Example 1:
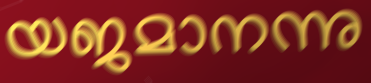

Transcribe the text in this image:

യജമാനന്നു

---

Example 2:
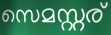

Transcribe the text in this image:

സെമസ്റ്റര്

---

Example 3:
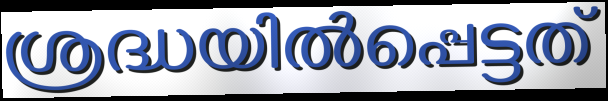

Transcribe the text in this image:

ശ്രദ്ധയിൽപ്പെട്ടത്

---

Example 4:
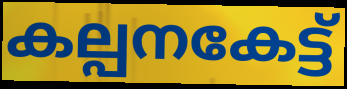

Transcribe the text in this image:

കല്പനകേട്ട്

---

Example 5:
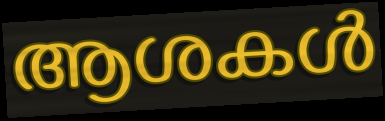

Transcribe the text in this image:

ആശകൾ